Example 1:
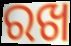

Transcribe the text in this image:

ରଖ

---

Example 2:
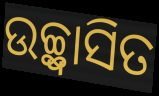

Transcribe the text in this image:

ଉଚ୍ଛ୍ୱାସିତ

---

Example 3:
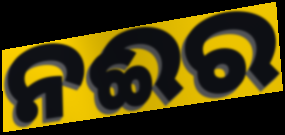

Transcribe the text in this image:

ନଈର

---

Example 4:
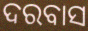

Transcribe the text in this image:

ଦରବାସ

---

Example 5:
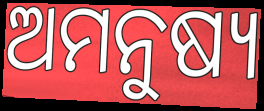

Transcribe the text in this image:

ଅମନୁଷ୍ୟ